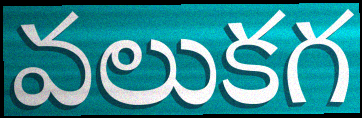
వలుకగ